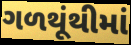
ગળથૂંથીમાં